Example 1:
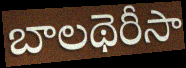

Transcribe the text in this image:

బాలథెరీసా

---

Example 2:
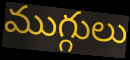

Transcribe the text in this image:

ముగ్గులు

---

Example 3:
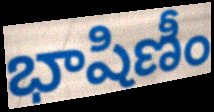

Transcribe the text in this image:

భాషిణీం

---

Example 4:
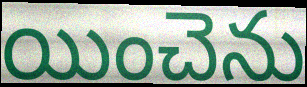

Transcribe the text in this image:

యించెను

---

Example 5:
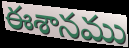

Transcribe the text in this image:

ఈశానము